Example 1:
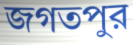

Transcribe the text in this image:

জগতপুর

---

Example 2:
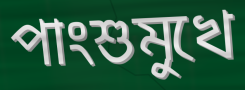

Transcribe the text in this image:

পাংশুমুখে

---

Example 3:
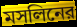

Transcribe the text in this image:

মসলিনের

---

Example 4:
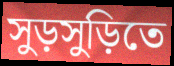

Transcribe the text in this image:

সুড়সুড়িতে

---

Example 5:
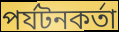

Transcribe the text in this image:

পর্যটনকর্তা